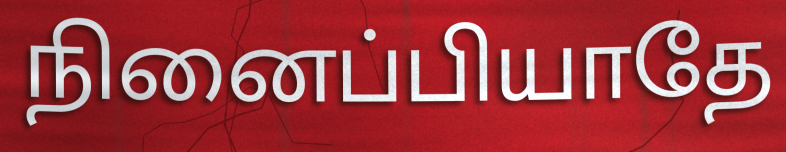
நினைப்பியாதே